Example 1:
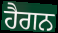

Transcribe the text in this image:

ਹੈਗਨ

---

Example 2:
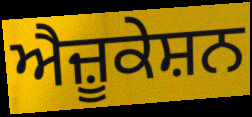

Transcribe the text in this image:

ਐਜ਼ੂਕੇਸ਼ਨ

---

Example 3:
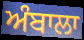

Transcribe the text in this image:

ਅੰਬਾਲਾ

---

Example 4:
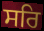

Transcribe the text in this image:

ਸਰਿ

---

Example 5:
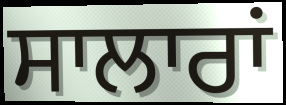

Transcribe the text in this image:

ਸਾਲਾਰਾਂ